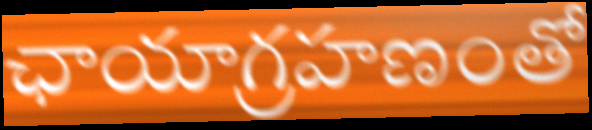
ఛాయాగ్రహణంతో